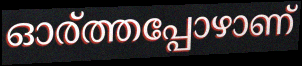
ഓര്ത്തപ്പോഴാണ്